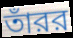
তাঁরর